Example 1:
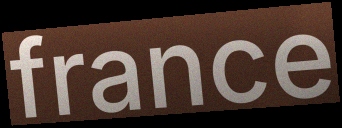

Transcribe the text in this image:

france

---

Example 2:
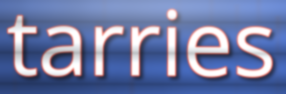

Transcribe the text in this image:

tarries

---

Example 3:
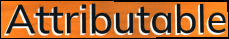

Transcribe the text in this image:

Attributable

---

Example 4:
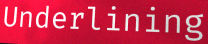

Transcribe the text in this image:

Underlining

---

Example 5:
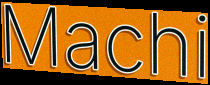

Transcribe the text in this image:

Machi